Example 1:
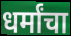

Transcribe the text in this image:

धर्मांचा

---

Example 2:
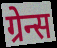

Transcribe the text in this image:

ग्रेन्स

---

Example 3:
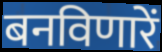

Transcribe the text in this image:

बनविणारें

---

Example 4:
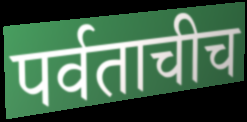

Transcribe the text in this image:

पर्वताचीच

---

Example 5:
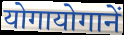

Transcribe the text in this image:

योगायोगानें